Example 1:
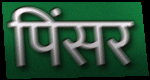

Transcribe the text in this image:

पिंसर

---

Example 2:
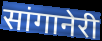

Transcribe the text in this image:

सांगानेरी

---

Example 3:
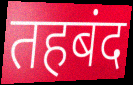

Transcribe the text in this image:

तहबंद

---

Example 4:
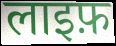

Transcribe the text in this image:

लाइफ़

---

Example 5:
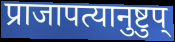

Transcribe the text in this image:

प्राजापत्यानुष्टुप्